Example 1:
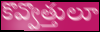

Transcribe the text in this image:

కొవ్వొత్తులూ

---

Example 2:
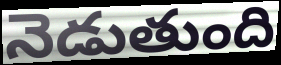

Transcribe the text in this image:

నెడుతుంది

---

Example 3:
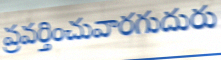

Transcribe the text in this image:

ప్రవర్తించువారగుదురు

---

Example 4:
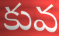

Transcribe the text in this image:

కువ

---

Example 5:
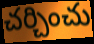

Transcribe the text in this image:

చర్చించు